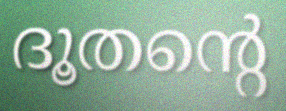
ദൂതന്റെ